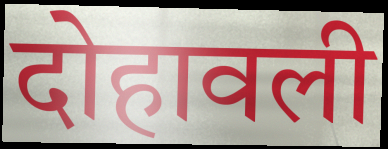
दोहावली